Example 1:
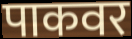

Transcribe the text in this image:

पाकवर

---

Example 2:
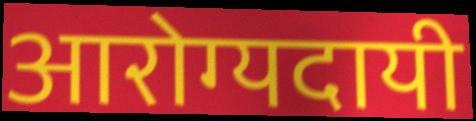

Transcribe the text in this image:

आरोग्यदायी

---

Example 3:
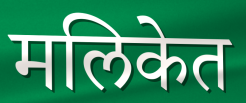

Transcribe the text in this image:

मलिकेत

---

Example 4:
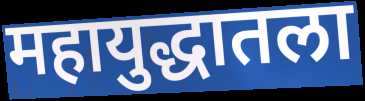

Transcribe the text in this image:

महायुद्धातला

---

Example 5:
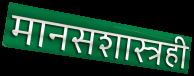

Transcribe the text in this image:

मानसशास्त्रही